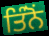
ਤਿੰਨੋਂ